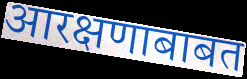
आरक्षणाबाबत